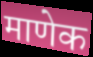
माणेक